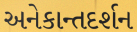
અનેકાન્તદર્શન